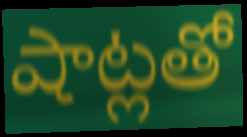
షాట్లతో